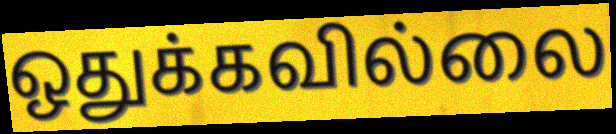
ஒதுக்கவில்லை